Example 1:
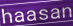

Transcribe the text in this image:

haasan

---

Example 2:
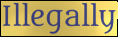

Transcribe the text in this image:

Illegally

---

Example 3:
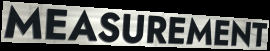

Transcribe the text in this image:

MEASUREMENT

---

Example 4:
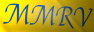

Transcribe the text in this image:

MMRV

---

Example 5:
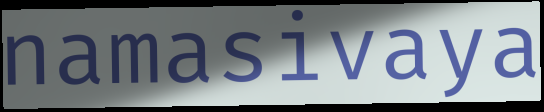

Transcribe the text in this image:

namasivaya